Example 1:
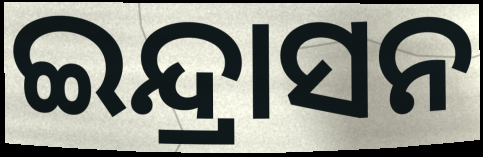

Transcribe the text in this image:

ଇନ୍ଦ୍ରାସନ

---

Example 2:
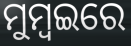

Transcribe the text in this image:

ମୁମ୍ବଇରେ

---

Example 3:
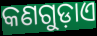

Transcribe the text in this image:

କଣଗୁଡ଼ାଏ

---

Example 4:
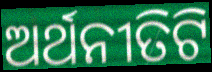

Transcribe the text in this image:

ଅର୍ଥନୀତିଟି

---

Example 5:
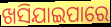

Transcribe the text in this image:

ଖସିଯାଇପାରେ